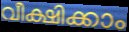
വീക്ഷിക്കാം